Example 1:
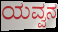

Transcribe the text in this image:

ಯವ್ವನ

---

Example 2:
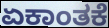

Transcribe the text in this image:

ಏಕಾಂತಕೆ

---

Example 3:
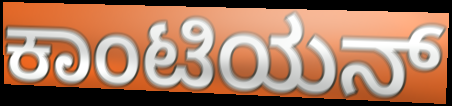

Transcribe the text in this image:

ಕಾಂಟಿಯನ್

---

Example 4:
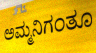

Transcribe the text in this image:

ಅಮ್ಮನಿಗಂತೂ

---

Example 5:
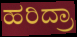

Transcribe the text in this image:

ಹರಿದ್ರಾ